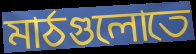
মাঠগুলোতে